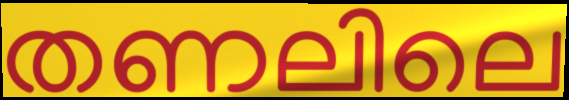
തണലിലെ